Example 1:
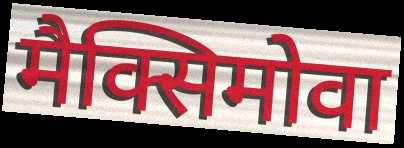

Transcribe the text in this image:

मैक्सिमोवा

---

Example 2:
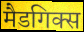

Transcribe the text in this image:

मैडगिक्स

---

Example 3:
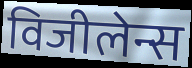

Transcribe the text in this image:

विजीलेन्स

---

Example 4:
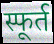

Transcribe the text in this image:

स्फूर्त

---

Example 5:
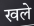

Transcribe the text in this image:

खले